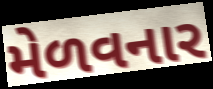
મેળવનાર